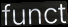
funct